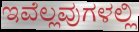
ಇವೆಲ್ಲವುಗಳಲ್ಲಿ